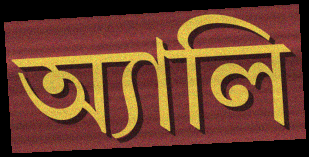
অ্যালি